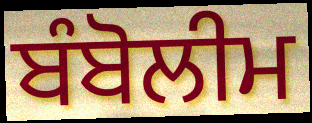
ਬੰਬੋਲੀਮ